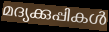
മദ്യക്കുപ്പികൾ